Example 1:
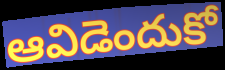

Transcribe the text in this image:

ఆవిడెందుకో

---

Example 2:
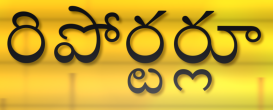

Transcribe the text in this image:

రిపోర్టర్లూ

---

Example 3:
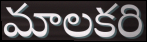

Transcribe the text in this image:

మాలకరి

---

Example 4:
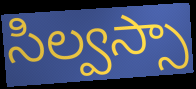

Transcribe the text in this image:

సిల్వస్సా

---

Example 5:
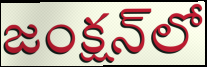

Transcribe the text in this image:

జంక్షన్‌లో